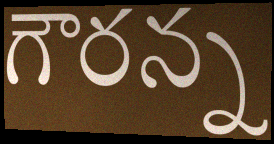
గౌరన్న